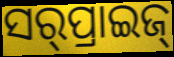
ସର୍‌ପ୍ରାଇଜ୍